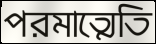
পরমাত্মেতি